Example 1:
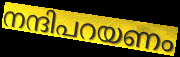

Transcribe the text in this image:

നന്ദിപറയണം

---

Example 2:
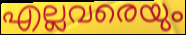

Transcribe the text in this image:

എല്ലവരെയും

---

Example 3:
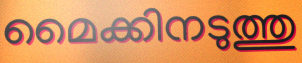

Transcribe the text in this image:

മൈക്കിനടുത്തു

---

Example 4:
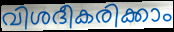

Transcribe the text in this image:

വിശദീകരിക്കാം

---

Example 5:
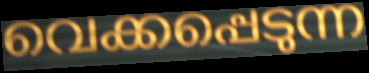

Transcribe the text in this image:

വെക്കപ്പെടുന്ന